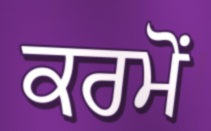
ਕਰਮੋਂ